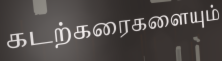
கடற்கரைகளையும்